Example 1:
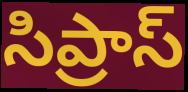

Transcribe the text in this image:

సిప్రాస్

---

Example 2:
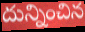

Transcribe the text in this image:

దున్నించిన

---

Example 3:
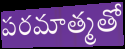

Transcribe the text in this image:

పరమాత్మతో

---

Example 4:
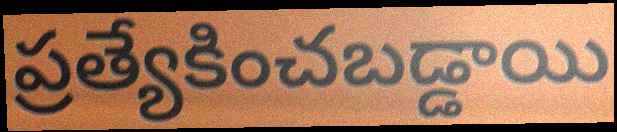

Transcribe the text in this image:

ప్రత్యేకించబడ్డాయి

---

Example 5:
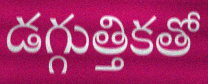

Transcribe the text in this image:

డగ్గుత్తికతో